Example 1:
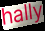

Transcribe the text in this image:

hally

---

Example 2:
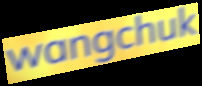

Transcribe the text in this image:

wangchuk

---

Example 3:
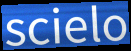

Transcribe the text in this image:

scielo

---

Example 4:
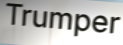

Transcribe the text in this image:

Trumper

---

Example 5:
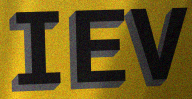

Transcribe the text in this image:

IEV